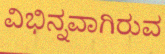
ವಿಭಿನ್ನವಾಗಿರುವ